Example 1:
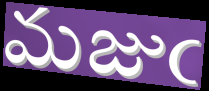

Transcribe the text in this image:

మజుఁ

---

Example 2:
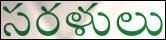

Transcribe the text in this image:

సరళులు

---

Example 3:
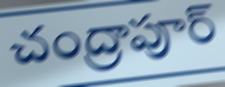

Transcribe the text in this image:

చంద్రాపూర్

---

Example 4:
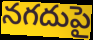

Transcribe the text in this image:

నగదుపై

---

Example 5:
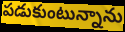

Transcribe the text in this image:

పడుకుంటున్నాను